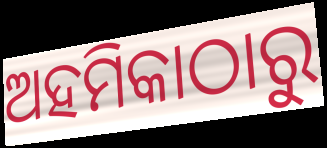
ଅହମିକାଠାରୁ